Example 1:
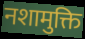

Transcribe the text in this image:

नशामुक्ति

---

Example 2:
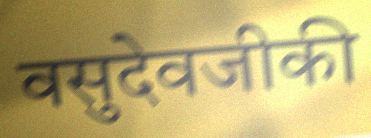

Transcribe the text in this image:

वसुदेवजीकी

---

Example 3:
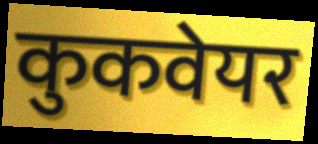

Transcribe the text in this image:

कुकवेयर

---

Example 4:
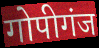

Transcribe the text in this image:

गोपीगंज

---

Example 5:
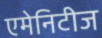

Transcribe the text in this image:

एमेनिटीज